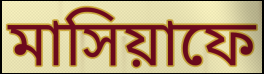
মাসিয়াফে